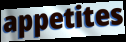
appetites